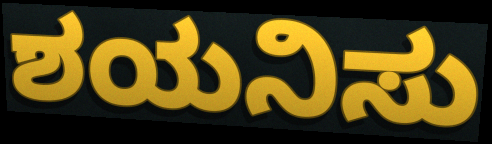
ಶಯನಿಸು